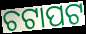
ଚଟାପଟ